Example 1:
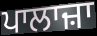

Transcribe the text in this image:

ਪਾਲਾਜ਼ਾ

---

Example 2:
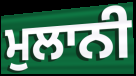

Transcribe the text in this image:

ਮੁਲਾਨੀ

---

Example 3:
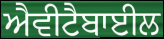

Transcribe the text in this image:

ਐਵੀਟੈਬਾਈਲ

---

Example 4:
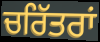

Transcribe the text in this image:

ਚਰਿੱਤਰਾਂ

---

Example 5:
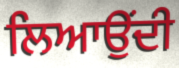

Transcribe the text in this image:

ਲਿਆਉਂਦੀ